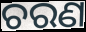
ଚରଣ